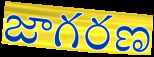
జాగరణ